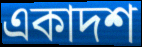
একাদশ